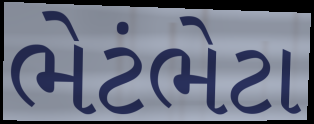
ભેટંભેટા